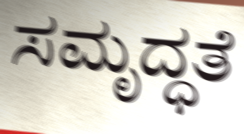
ಸಮೃದ್ಧತೆ